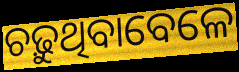
ଚଢ଼ୁଥିବାବେଳେ